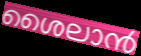
ശൈലാൻ